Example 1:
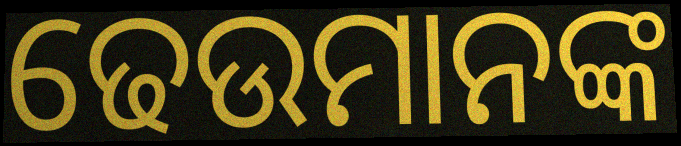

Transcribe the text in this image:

ଢେଉମାନଙ୍କ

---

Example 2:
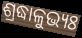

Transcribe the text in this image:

ଶ୍ରଦ୍ଧାଳୁଭ୍ୟଃ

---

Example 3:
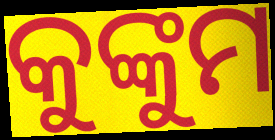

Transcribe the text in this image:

କୁଙ୍କୁମ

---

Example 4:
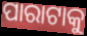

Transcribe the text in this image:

ପାରାଟାକୁ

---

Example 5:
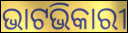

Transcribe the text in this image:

ଭାଟଭିକାରୀ